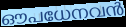
ഔപധേനവൻ